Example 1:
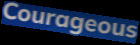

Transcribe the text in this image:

Courageous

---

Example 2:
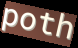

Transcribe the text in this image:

poth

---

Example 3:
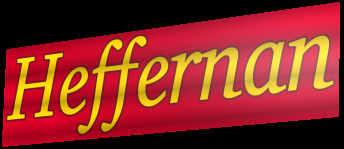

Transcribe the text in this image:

Heffernan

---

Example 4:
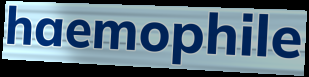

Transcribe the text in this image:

haemophile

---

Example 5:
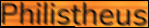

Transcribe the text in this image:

Philistheus